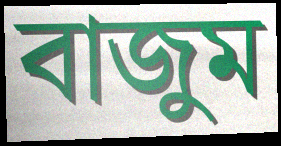
বাজুম